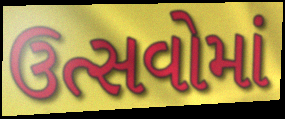
ઉત્સવોમાં